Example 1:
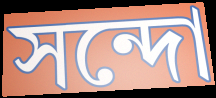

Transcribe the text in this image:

সন্দো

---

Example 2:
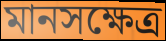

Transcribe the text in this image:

মানসক্ষেত্র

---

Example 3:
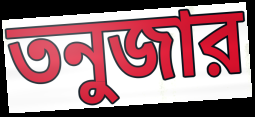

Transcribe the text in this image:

তনুজার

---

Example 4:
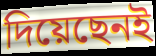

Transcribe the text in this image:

দিয়েছেনই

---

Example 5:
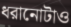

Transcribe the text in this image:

ধরানোটাও